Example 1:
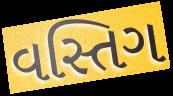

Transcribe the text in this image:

વસ્તિગ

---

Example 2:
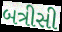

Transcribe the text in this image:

બત્રીસી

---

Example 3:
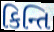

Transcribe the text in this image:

કિન્તિ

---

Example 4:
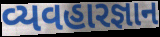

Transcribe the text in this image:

વ્યવહારજ્ઞાન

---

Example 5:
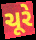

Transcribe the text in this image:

ચૂરે